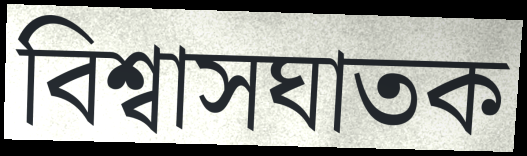
বিশ্বাসঘাতক